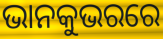
ଭାନକୁଭରରେ